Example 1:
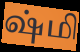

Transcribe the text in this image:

ஷ்மி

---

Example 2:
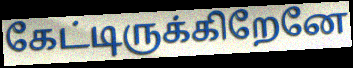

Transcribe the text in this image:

கேட்டிருக்கிறேனே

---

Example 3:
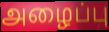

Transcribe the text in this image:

அழைப்பு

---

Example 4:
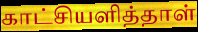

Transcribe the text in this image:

காட்சியளித்தாள்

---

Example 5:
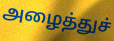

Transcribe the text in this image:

அழைத்துச்